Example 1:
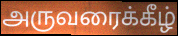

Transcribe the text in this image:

அருவரைக்கீழ்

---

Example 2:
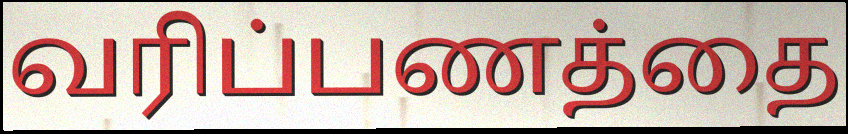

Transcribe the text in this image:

வரிப்பணத்தை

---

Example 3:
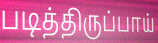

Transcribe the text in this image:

படித்திருப்பாய்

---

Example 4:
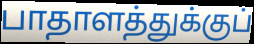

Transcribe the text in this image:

பாதாளத்துக்குப்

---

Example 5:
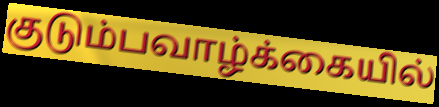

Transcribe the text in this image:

குடும்பவாழ்க்கையில்